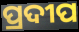
ପ୍ରଦୀପ